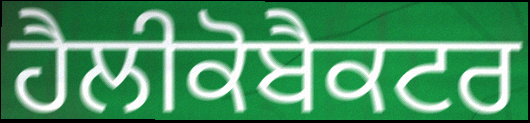
ਹੈਲੀਕੋਬੈਕਟਰ